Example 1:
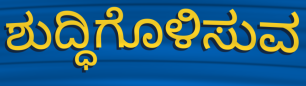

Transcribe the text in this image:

ಶುದ್ಧಿಗೊಳಿಸುವ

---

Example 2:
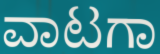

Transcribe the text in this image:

ವಾಟಗಾ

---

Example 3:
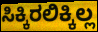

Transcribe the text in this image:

ಸಿಕ್ಕಿರಲಿಕ್ಕಿಲ್ಲ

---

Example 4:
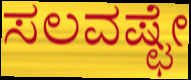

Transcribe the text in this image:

ಸಲವಷ್ಟೇ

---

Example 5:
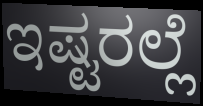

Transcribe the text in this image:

ಇಷ್ಟರಲ್ಲೆ